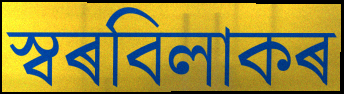
স্বৰবিলাকৰ